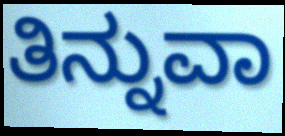
ತಿನ್ನುವಾ